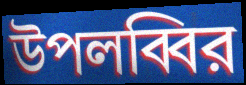
উপলব্বির